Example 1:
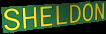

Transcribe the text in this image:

SHELDON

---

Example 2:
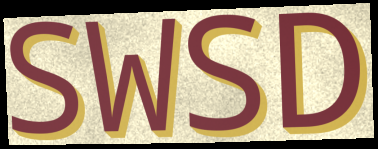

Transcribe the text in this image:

SWSD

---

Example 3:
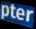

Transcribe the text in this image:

pter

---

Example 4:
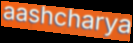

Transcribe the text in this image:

aashcharya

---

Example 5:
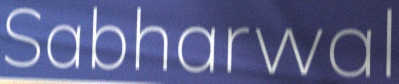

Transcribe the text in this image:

Sabharwal